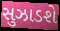
સુઝાડશે